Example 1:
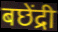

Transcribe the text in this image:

बछेंद्री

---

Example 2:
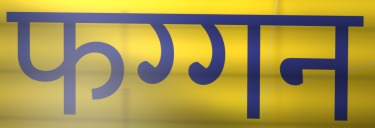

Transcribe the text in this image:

फग्‍गन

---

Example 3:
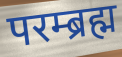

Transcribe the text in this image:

परम्ब्रह्म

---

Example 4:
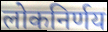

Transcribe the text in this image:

लोकनिर्णय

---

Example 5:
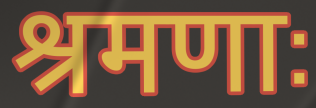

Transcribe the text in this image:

श्रमणाः